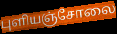
புளியஞ்சோலை